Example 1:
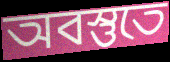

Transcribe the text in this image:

অবস্তুতে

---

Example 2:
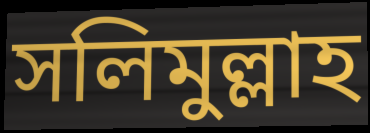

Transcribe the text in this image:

সলিমুল্লাহ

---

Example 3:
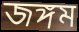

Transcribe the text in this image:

জঙ্গম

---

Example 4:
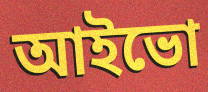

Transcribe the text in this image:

আইভো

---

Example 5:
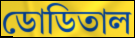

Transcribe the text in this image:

ডোডিতাল